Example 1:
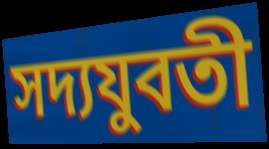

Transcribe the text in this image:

সদ্যযুবতী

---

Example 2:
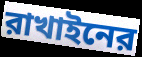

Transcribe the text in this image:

রাখাইনের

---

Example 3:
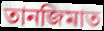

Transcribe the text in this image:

তানজিমাত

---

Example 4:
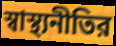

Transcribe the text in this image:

স্বাস্থ্যনীতির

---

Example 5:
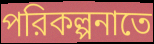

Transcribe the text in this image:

পরিকল্পনাতে